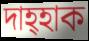
দাহ্হাক